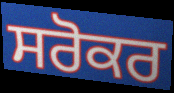
ਸਰੋਕਰ